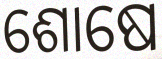
ଶୋଷେ